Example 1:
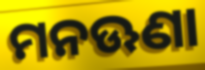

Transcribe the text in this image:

ମନଊଣା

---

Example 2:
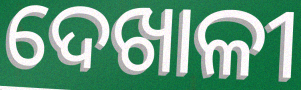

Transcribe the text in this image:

ଦେଖାଳୀ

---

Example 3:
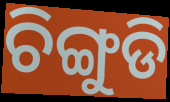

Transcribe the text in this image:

ଚିଙ୍ଗୁଡି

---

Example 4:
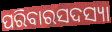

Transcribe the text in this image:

ପରିବାରସଦସ୍ୟା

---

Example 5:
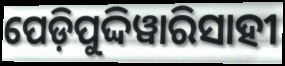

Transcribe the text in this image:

ପେଡ଼ିପୁଦ୍ଦିୱାରିସାହୀ